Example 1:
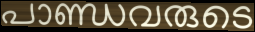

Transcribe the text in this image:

പാണ്ഡവരുടെ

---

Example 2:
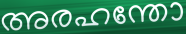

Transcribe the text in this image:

അരഹന്തോ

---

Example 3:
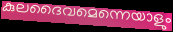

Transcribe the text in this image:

കുലദൈവമെന്നെയാളും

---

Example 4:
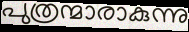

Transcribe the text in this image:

പുത്രന്മാരാകുന്നു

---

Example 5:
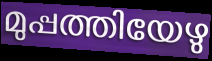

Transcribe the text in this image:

മുപ്പത്തിയേഴു